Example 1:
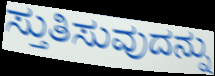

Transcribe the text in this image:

ಸ್ತುತಿಸುವುದನ್ನು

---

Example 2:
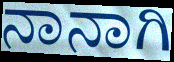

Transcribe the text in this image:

ನಾನಾಗಿ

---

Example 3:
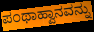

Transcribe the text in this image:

ಪಂಥಾಹ್ವಾನವನ್ನು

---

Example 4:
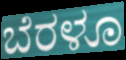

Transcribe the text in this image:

ಬೆರಳೂ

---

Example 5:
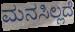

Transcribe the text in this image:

ಮನಸಿಲ್ಲದೆ